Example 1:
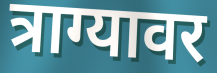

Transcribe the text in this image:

त्राग्यावर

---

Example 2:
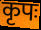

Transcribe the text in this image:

कृपः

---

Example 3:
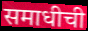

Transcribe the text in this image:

समाधीची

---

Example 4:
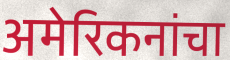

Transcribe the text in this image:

अमेरिकनांचा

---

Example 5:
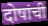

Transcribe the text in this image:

दोषांची